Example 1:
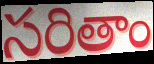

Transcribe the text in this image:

సరితాం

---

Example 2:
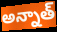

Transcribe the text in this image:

అన్నాత్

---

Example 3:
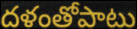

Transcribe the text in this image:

దళంతోపాటు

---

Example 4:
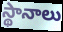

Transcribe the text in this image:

స్థానాలు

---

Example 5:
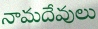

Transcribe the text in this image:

నామదేవులు